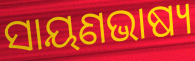
ସାୟଣଭାଷ୍ୟ